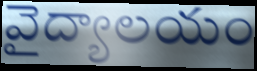
వైద్యాలయం